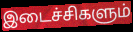
இடைச்சிகளும்